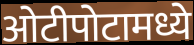
ओटीपोटामध्ये